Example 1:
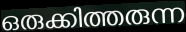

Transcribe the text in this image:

ഒരുക്കിത്തരുന്ന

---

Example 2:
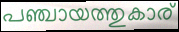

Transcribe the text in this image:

പഞ്ചായത്തുകാര്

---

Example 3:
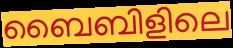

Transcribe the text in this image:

ബൈബിളിലെ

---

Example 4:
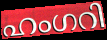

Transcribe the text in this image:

ഹംഗറി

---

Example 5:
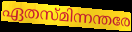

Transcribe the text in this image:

ഏതസ്മിന്നന്തരേ